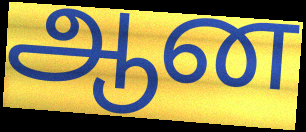
ஆன